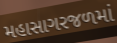
મહાસાગરજળમાં